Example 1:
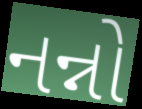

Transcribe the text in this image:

નન્નો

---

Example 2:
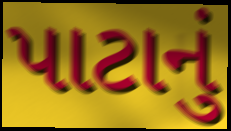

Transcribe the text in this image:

પાટાનું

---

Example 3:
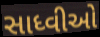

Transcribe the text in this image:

સાધ્વીઓ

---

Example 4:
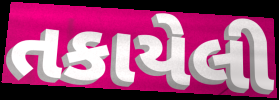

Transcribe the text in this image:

તકાયેલી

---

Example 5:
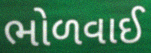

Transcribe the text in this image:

ભોળવાઈ